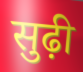
सुढ़ी